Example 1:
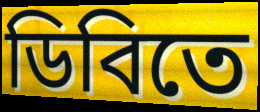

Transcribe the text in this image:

ডিবিতে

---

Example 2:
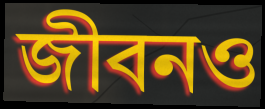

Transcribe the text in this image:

জীবনও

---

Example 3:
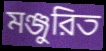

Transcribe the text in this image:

মঞ্জুরিত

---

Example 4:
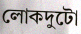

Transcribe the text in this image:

লোকদুটো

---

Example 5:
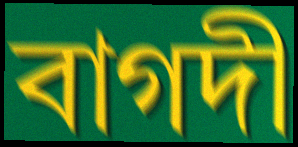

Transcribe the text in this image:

বাগদী